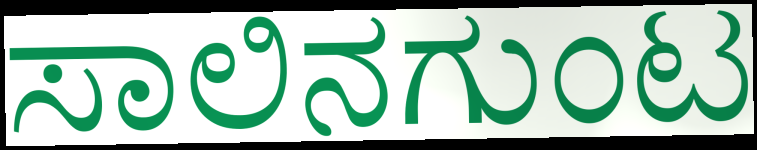
ಸಾಲಿನಗುಂಟ